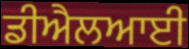
ਡੀਐਲਆਈ